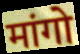
मांगो